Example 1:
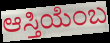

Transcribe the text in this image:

ಆಸ್ತಿಯೆಂಬ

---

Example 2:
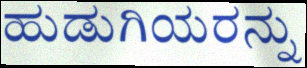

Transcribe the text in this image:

ಹುಡುಗಿಯರನ್ನು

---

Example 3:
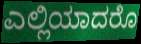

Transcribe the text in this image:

ಎಲ್ಲಿಯಾದರೊ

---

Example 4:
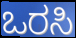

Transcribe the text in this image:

ಒರಸಿ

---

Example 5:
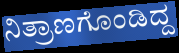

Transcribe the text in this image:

ನಿತ್ರಾಣಗೊಂಡಿದ್ದ